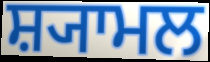
ਸ਼੍ਯਾਮਲ